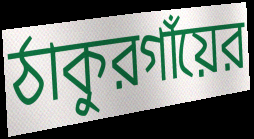
ঠাকুরগাঁয়ের